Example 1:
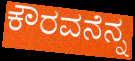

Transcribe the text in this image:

ಕೌರವನೆನ್ನ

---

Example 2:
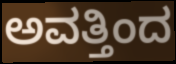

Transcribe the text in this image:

ಅವತ್ತಿಂದ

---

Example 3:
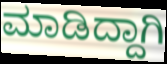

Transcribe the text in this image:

ಮಾಡಿದ್ದಾಗಿ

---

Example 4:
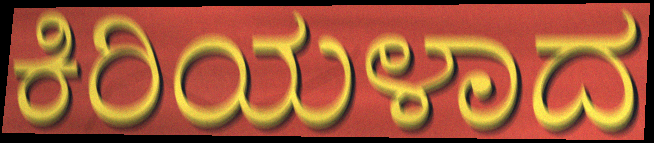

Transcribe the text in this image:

ಕಿರಿಯಳಾದ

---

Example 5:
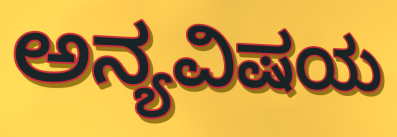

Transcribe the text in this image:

ಅನ್ಯವಿಷಯ